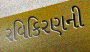
રવિકિરણની